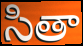
సితా